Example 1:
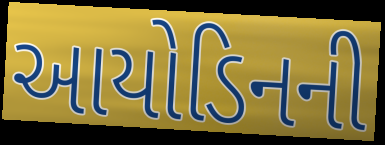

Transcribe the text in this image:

આયોડિનની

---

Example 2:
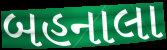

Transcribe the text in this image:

બહનાલા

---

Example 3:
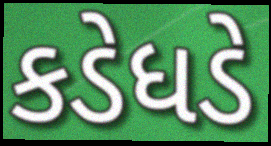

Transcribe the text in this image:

કડેધડે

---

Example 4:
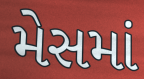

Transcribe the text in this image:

મેસમાં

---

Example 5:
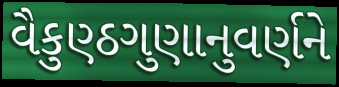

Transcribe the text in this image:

વૈકુણ્ઠગુણાનુવર્ણને